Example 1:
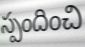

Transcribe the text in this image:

స్పందించి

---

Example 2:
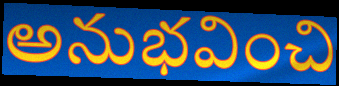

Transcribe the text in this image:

అనుభవించి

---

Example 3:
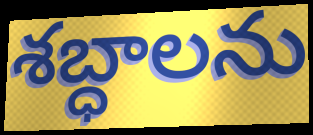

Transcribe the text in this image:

శబ్ధాలను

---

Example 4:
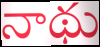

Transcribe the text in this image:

నాథు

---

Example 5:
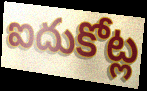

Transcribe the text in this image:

ఐదుకోట్ల